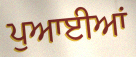
ਪੁਆਈਆਂ